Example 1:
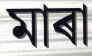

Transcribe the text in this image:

মাৰা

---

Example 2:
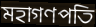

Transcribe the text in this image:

মহাগণপতি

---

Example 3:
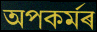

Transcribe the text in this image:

অপকৰ্মৰ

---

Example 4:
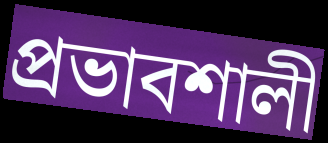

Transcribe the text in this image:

প্ৰভাবশালী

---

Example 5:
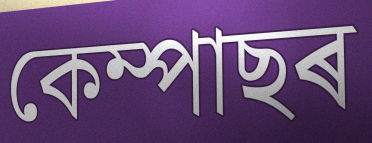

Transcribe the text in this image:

কেম্পাছৰ